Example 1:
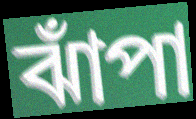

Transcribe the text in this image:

ঝাঁপা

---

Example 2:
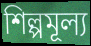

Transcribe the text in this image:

শিল্পমূল্য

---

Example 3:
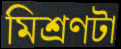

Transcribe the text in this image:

মিশ্রণটা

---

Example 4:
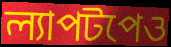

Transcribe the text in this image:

ল্যাপটপেও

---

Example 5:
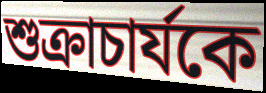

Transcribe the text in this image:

শুক্রাচার্যকে